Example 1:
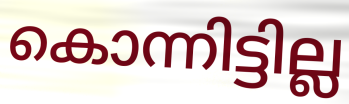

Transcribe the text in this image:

കൊന്നിട്ടില്ല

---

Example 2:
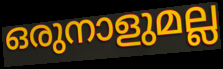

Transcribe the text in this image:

ഒരുനാളുമല്ല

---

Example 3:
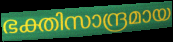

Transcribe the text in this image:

ഭക്തിസാന്ദ്രമായ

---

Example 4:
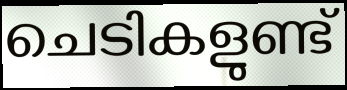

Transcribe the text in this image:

ചെടികളുണ്ട്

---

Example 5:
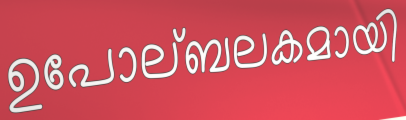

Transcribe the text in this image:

ഉപോല്ബലകമായി